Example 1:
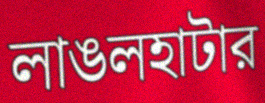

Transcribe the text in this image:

লাঙলহাটার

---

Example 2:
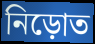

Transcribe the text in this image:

নিড়োত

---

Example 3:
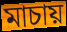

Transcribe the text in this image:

মাচায়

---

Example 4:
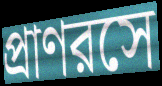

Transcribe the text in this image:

প্রাণরসে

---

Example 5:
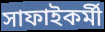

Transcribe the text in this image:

সাফাইকর্মী